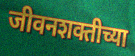
जीवनशक्तीच्या